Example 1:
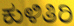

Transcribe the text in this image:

ಕುಳಿತಿರಿ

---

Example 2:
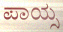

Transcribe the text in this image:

ಪಾಯ್ಸ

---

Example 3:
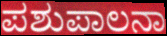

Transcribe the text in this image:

ಪಶುಪಾಲನಾ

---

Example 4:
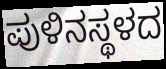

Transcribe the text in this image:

ಪುಳಿನಸ್ಥಳದ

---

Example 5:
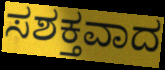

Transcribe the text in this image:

ಸಶಕ್ತವಾದ